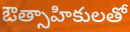
ఔత్సాహికులతో